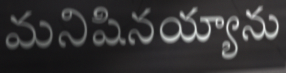
మనిషినయ్యాను